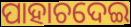
ପାହାଚଦେଇ